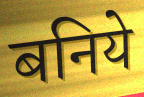
बनिये